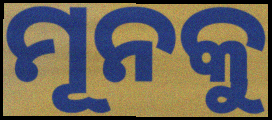
ମୂନକୁ